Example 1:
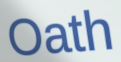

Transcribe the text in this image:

Oath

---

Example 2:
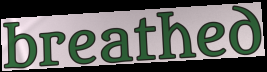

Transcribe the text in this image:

breathed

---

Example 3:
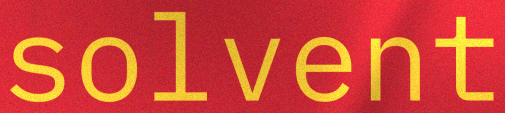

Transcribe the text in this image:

solvent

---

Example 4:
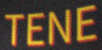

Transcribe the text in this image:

TENE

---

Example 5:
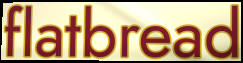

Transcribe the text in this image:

flatbread